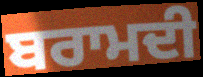
ਬਰਾਮਦੀ